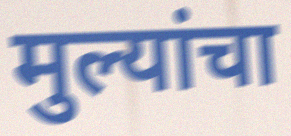
मुल्यांचा